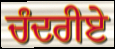
ਚੰਦਰੀਏ